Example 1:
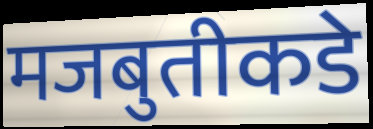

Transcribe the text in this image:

मजबुतीकडे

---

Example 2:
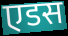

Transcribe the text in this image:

एडस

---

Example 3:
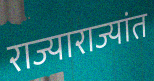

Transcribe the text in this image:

राज्याराज्यांत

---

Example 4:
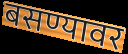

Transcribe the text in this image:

बसण्यावर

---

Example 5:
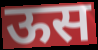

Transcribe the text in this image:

ऊस